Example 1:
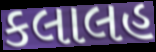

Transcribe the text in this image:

કલાલહ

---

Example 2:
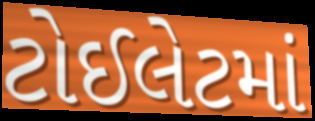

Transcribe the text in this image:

ટોઈલેટમાં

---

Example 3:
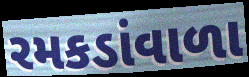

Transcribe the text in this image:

રમકડાંવાળા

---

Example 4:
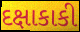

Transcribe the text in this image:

દક્ષાકાકી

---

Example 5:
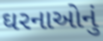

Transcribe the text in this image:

ઘરનાઓનું